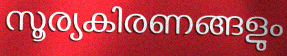
സൂര്യകിരണങ്ങളും